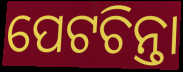
ପେଟଚିନ୍ତା